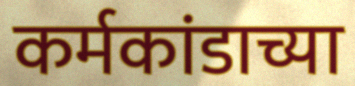
कर्मकांडाच्या